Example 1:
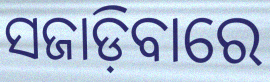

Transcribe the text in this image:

ସଜାଡ଼ିବାରେ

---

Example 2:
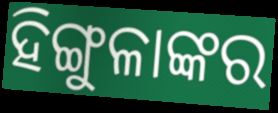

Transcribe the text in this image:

ହିଙ୍ଗୁଳାଙ୍କର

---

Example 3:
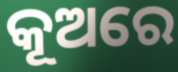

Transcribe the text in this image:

କୂଅରେ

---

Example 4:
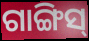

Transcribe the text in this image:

ଗାଙ୍ଗିସ୍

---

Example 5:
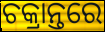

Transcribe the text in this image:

ଚକ୍ରାନ୍ତରେ